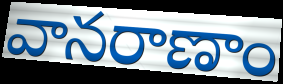
వానరాణాం